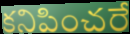
కనిపించరే